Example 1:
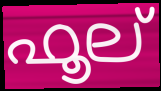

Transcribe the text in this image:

ഫൂല്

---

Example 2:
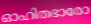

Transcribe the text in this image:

ഓഹിതഭാരോ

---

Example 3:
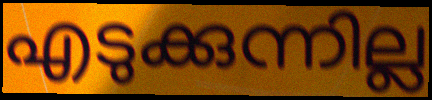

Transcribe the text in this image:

എടുക്കുന്നില്ല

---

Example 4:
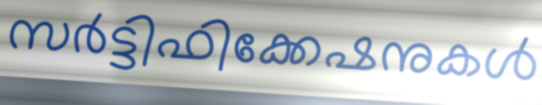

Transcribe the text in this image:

സർട്ടിഫിക്കേഷനുകൾ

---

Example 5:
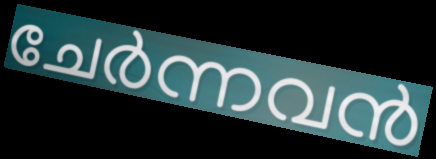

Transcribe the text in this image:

ചേർന്നവൻ